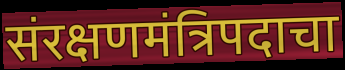
संरक्षणमंत्रिपदाचा